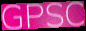
GPSC